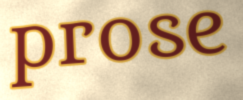
prose